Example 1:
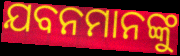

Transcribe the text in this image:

ଯବନମାନଙ୍କୁ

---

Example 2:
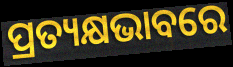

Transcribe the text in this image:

ପ୍ରତ୍ୟକ୍ଷଭାବରେ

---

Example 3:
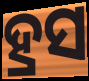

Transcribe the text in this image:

ହ୍ରସ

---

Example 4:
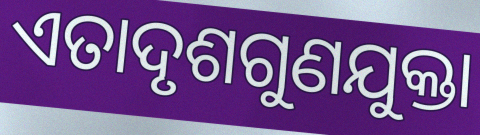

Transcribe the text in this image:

ଏତାଦୃଶଗୁଣଯୁକ୍ତା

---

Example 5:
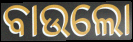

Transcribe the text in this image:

ବାଉଲୋ